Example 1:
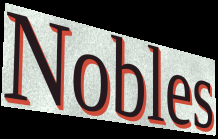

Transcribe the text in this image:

Nobles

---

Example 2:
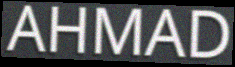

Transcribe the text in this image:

AHMAD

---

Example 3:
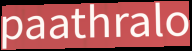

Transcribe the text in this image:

paathralo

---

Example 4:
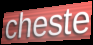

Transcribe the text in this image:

cheste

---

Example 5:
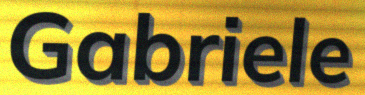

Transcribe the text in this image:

Gabriele